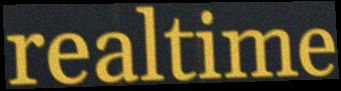
realtime